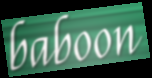
baboon